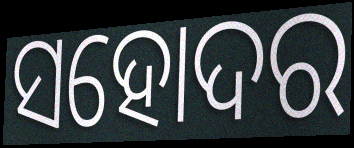
ସହୋଦର